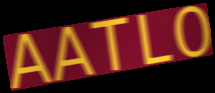
AATLO